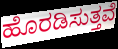
ಹೊರಡಿಸುತ್ತವೆ